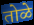
तोळे